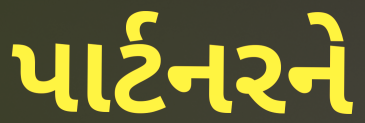
પાર્ટનરને